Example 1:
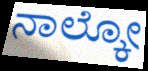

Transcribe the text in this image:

ನಾಲ್ಕೋ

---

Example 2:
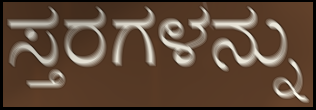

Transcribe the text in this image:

ಸ್ತರಗಳನ್ನು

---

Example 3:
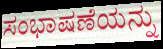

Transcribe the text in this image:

ಸಂಭಾಷಣೆಯನ್ನು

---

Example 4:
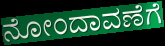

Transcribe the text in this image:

ನೋಂದಾವಣೆಗೆ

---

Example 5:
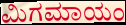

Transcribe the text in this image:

ಮಿಗಮಾಯಂ